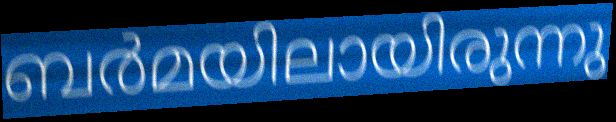
ബർമയിലായിരുന്നു